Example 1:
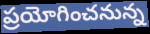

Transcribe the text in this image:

ప్రయోగించనున్న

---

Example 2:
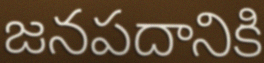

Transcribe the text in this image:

జనపదానికి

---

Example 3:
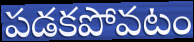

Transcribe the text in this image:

పడకపోవటం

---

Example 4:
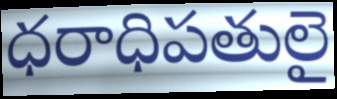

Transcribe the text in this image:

ధరాధిపతులై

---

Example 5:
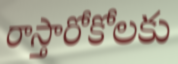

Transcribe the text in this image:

రాస్తారోకోలకు